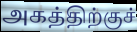
அகத்திற்குச்